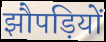
झौपड़ियों